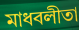
মাধবলীতা